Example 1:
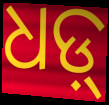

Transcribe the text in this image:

ଧଡ଼୍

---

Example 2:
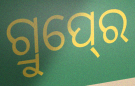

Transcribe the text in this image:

ଗ୍ରୁପ୍‍ରେ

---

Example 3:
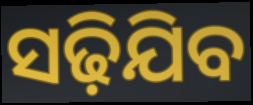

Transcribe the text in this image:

ସଢ଼ିଯିବ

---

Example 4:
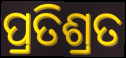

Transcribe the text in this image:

ପ୍ରତିଶ୍ରତ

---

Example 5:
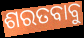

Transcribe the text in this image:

ଶରତବାବୁ